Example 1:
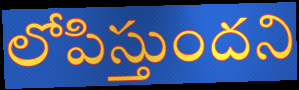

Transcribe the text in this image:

లోపిస్తుందని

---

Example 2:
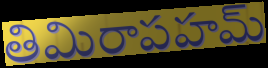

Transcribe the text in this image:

తిమిరాపహమ్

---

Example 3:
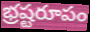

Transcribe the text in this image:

భ్రష్టరూపం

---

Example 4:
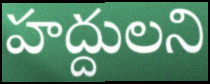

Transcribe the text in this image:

హద్దులని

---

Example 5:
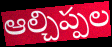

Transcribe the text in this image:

ఆల్చిప్పల